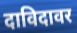
दाविदावर